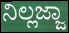
ನಿಲ್ಲಜ್ಜಾ